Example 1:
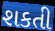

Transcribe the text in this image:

શકતી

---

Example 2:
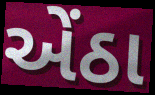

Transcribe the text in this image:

એંઠા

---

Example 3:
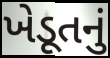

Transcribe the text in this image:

ખેડૂતનું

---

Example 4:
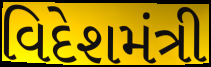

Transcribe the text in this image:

વિદેશમંત્રી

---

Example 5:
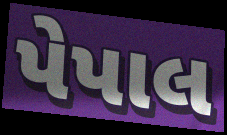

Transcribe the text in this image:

પેપાલ